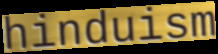
hinduism